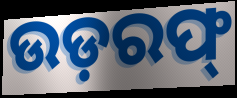
ଉଡ଼ରଫ୍